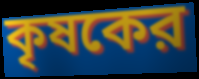
কৃষকের